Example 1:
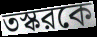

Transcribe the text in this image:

তস্করকে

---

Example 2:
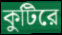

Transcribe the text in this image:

কুটিরে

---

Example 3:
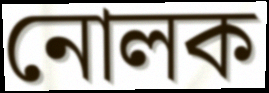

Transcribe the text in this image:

নোলক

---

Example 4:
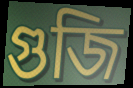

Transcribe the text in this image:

গুজি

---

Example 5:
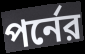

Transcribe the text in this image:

পর্নের